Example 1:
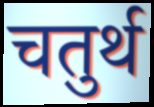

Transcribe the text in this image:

चतुर्थ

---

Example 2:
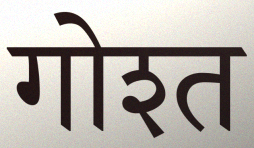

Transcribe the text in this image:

गोश्त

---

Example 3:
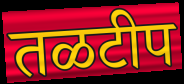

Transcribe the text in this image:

तळटीप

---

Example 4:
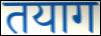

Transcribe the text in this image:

तयाग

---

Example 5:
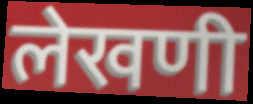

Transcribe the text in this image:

लेखणी